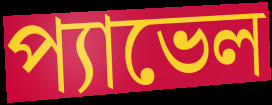
প্যাভেল